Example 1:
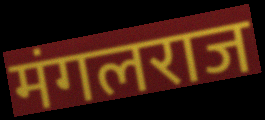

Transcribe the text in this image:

मंगलराज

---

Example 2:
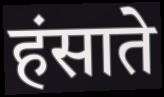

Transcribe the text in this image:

हंसाते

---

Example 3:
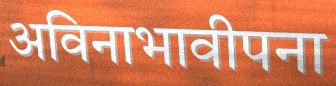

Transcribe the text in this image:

अविनाभावीपना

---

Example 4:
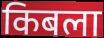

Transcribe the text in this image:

किबला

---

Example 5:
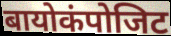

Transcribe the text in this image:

बायोकंपोजिट